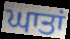
ਘਾਤਾਂ